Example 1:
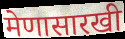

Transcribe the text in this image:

मेणासारखी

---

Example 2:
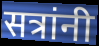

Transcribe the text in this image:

सत्रांनी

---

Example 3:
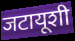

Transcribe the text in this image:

जटायूशी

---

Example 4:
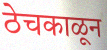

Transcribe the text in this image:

ठेचकाळून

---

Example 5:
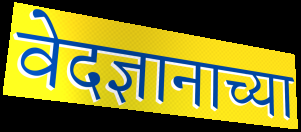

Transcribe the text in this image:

वेदज्ञानाच्या